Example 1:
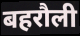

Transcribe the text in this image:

बहरौली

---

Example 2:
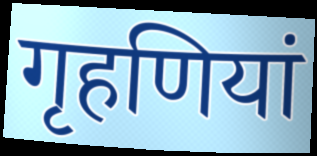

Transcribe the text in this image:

गृहणियां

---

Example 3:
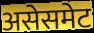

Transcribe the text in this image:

असेसमेट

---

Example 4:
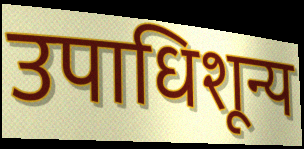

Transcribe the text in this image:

उपाधिशून्य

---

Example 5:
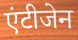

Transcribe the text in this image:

एंटीजेन